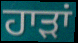
ਹਾੜਾਂ